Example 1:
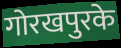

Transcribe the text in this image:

गोरखपुरके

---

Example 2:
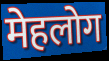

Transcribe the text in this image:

मेहलोग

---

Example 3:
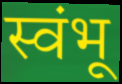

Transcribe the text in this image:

स्वंभू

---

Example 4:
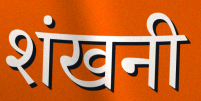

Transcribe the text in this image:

शंखनी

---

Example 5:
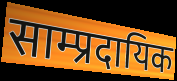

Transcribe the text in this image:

साम्प्रदायिक